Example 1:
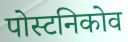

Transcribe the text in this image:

पोस्टनिकोव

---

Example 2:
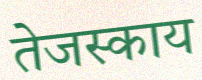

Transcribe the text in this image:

तेजस्काय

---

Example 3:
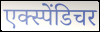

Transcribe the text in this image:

एक्स्पेंडिचर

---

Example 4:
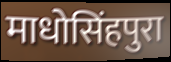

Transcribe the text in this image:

माधोसिंहपुरा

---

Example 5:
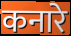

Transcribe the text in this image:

कनारे